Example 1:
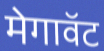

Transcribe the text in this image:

मेगावॅट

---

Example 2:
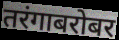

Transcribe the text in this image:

तरंगाबरोबर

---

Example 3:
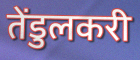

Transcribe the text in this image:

तेंडुलकरी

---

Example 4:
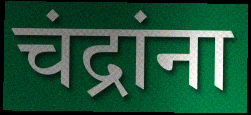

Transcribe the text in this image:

चंद्रांना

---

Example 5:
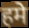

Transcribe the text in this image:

हमे